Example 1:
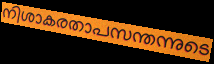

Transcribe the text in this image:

നിശാകരതാപസന്തന്നുടെ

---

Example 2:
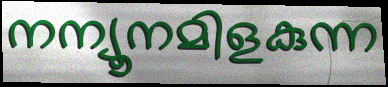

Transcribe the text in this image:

നന്യൂനമിളകുന്ന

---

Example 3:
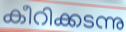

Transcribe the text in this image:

കീറിക്കടന്നു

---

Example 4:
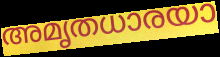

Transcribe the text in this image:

അമൃതധാരയാ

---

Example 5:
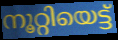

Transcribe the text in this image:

നൂറ്റിയെട്ട്